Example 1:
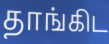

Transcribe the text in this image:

தாங்கிட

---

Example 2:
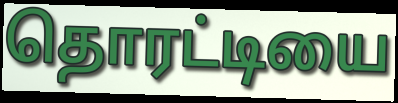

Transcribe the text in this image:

தொரட்டியை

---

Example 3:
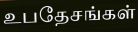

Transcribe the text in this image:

உபதேசங்கள்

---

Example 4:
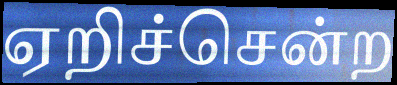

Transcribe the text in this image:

ஏறிச்சென்ற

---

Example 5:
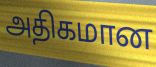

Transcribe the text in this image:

அதிகமான